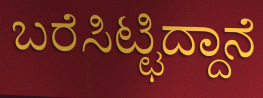
ಬರೆಸಿಟ್ಟಿದ್ದಾನೆ